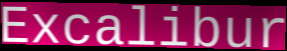
Excalibur